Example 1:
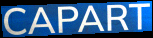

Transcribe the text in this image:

CAPART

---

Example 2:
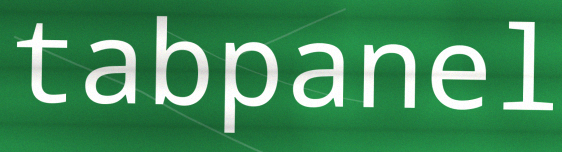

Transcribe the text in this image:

tabpanel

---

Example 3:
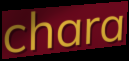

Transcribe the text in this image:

chara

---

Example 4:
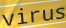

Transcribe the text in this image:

virus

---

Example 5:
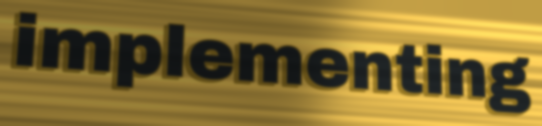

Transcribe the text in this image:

implementing